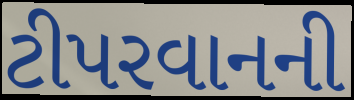
ટીપરવાનની